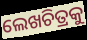
ଲେଖଚିତ୍ରକୁ